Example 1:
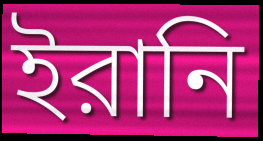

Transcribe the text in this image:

ইরানি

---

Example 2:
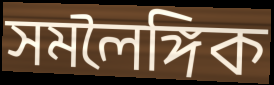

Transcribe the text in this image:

সমলৈঙ্গিক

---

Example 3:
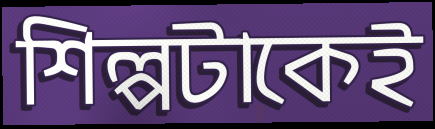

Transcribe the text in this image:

শিল্পটাকেই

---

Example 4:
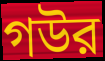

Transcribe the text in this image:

গউর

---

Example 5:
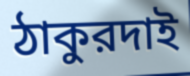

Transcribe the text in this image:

ঠাকুরদাই